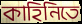
কাহিনিতে